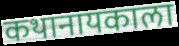
कथानायकाला